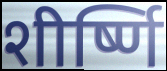
शीर्ष्णि